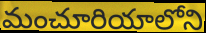
మంచూరియాలోని